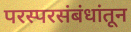
परस्परसंबंधांतून